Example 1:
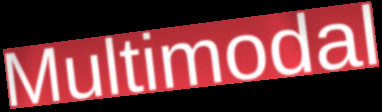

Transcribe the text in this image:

Multimodal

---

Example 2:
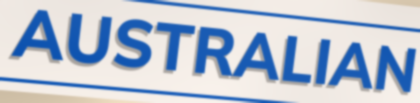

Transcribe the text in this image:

AUSTRALIAN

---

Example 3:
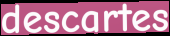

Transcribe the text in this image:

descartes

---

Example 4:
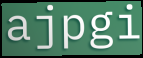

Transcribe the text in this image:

ajpgi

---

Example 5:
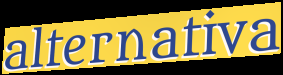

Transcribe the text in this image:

alternativa